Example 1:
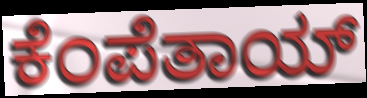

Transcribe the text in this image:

ಕೆಂಪೆತಾಯ್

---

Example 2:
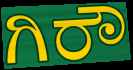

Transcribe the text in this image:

ಗಿರೌ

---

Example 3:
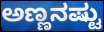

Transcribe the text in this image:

ಅಣ್ಣನಷ್ಟು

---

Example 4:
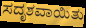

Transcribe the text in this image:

ಸದೃಶವಾಯಿತು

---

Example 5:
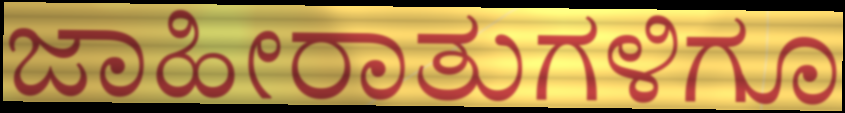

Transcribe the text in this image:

ಜಾಹೀರಾತುಗಳಿಗೂ